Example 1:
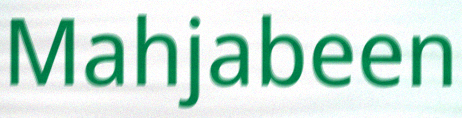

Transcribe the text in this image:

Mahjabeen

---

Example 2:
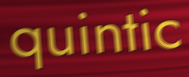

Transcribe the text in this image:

quintic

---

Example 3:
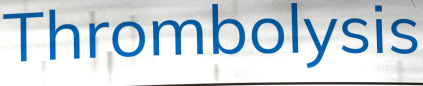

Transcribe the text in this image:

Thrombolysis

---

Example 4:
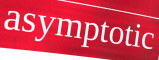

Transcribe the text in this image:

asymptotic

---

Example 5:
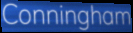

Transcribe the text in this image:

Conningham